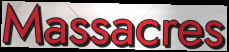
Massacres